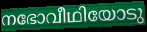
നഭോവീഥിയോടു